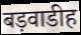
बड़वाडीह